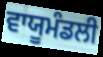
ਵਾਯੂਮੰਡਲੀ